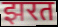
झरत